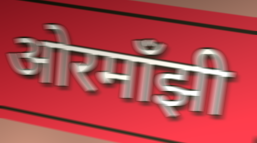
ओरमाँझी